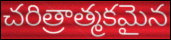
చరిత్రాత్మకమైన